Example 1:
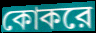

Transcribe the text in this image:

কোকরে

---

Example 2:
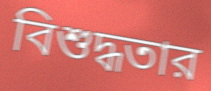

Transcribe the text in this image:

বিশুদ্ধতার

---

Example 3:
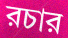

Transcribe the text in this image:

রচার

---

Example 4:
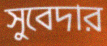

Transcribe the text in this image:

সুবেদার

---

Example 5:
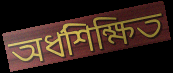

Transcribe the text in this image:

অর্ধশিক্ষিত